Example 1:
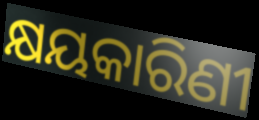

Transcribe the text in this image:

କ୍ଷୟକାରିଣୀ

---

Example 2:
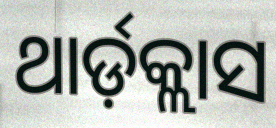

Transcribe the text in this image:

ଥାର୍ଡ଼କ୍ଲାସ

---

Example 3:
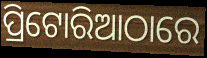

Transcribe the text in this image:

ପ୍ରିଟୋରିଆଠାରେ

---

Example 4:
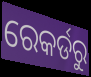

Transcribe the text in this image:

ରେକର୍ଡରୁ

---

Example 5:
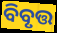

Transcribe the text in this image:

ବିବୃତ୍ତ